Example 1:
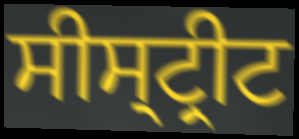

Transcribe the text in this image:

ਸੀਸ੍ਟ੍ਰੀਟ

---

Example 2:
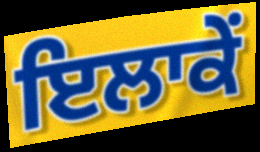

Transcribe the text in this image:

ਇਲਾਕੇਂ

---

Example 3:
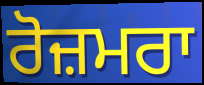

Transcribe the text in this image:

ਰੋਜ਼ਮਰਾ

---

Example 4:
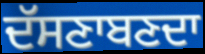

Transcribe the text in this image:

ਦੱਸਣਾਬਣਦਾ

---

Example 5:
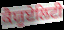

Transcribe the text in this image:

ਕੈਯੂਏਲਿਟੀ